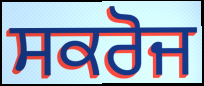
ਸਕਰੋਜ